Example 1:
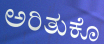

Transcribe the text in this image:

ಅರಿತುಕೊ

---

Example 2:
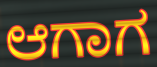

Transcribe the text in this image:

ಆಗಾಗ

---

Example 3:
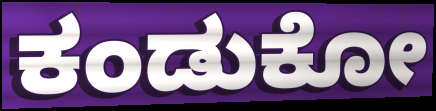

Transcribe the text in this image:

ಕಂಡುಕೋ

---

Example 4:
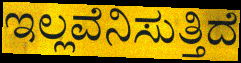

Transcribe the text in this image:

ಇಲ್ಲವೆನಿಸುತ್ತಿದೆ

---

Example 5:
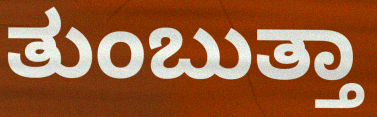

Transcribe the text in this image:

ತುಂಬುತ್ತಾ